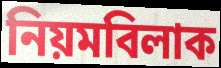
নিয়মবিলাক